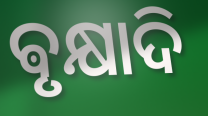
ଵୃକ୍ଷାଦି